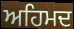
ਅਹਿਮਦ